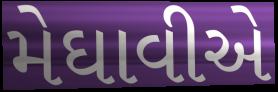
મેઘાવીએ